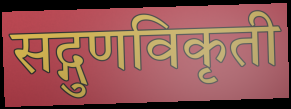
सद्गुणविकृती